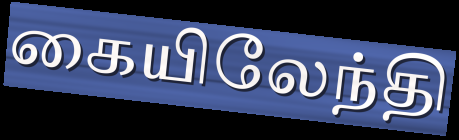
கையிலேந்தி